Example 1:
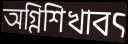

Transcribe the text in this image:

অগ্নিশিখাবৎ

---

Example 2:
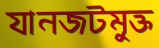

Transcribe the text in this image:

যানজটমুক্ত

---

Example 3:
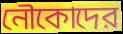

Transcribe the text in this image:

নৌকোদের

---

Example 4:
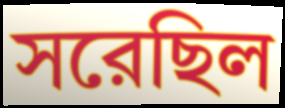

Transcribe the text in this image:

সরেছিল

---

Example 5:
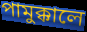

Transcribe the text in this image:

পামুক্কালে